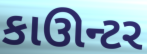
કાઊન્ટર